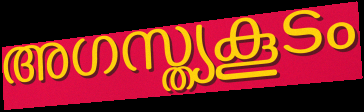
അഗസ്ത്യകൂടം